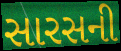
સારસની